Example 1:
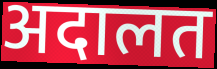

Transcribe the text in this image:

अदालत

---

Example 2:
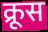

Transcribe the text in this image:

क्रूस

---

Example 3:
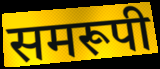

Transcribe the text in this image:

समरूपी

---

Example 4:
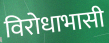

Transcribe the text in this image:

विरोधाभासी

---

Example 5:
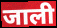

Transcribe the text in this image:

जाली